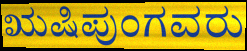
ಋಷಿಪುಂಗವರು